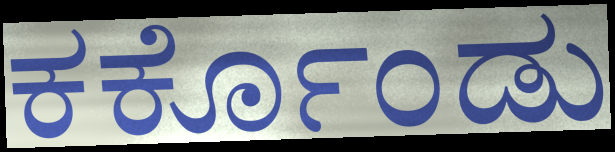
ಕರ್ಕೊಂಡು